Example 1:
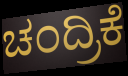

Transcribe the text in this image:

ಚಂದ್ರಿಕೆ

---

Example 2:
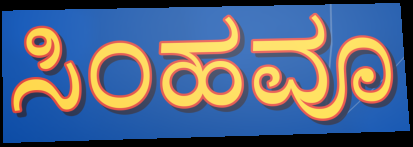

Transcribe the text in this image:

ಸಿಂಹವೂ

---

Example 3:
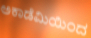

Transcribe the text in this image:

ಅಕಾಡೆಮಿಯಿಂದ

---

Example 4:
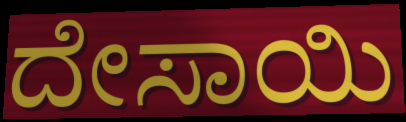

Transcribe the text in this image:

ದೇಸಾಯಿ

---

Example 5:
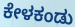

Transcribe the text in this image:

ಕೇಳಕಂಡು